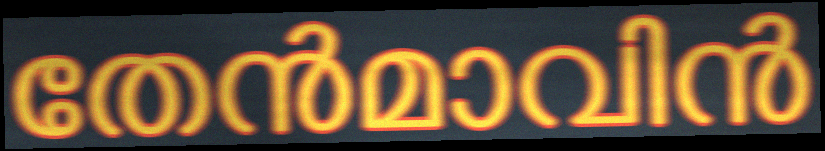
തേൻമാവിൻ